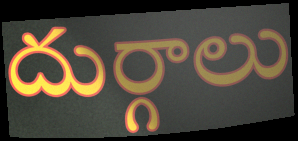
దుర్గాలు